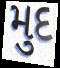
મુદ